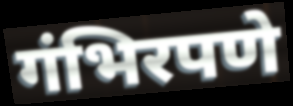
गंभिरपणे